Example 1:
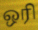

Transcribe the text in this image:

ஒரி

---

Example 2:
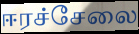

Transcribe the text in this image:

ஈரச்சேலை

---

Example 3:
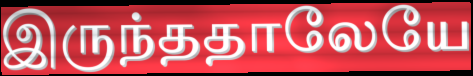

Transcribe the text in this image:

இருந்ததாலேயே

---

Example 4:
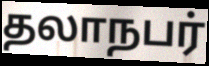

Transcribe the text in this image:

தலாநபர்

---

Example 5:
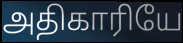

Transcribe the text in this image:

அதிகாரியே